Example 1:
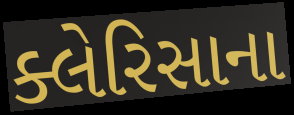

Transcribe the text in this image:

ક્લેરિસાના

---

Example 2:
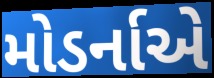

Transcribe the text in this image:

મોડર્નાએ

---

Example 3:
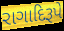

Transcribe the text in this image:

રાગાદિરૂપે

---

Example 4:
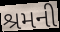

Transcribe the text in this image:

શ્રમની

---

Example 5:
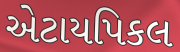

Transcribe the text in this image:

એટાયપિકલ